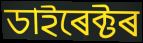
ডাইৰেক্টৰ